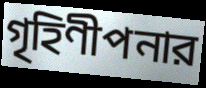
গৃহিণীপনার